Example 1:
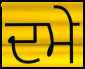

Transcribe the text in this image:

ਦਮੇ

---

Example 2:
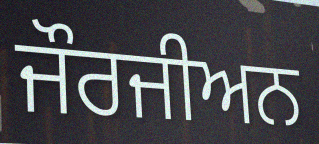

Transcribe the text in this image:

ਜੌਰਜੀਅਨ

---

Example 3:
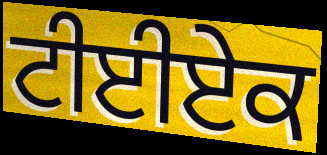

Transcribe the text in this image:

ਟੀਈਏਕ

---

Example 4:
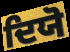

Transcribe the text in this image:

ਦਿਯੋ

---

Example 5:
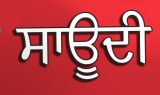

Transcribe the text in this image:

ਸਾਊਦੀ